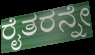
ರೈತರನ್ನೇ